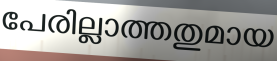
പേരില്ലാത്തതുമായ